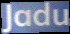
Jadu